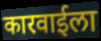
कारवाईला